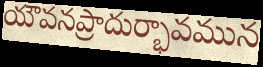
యౌవనప్రాదుర్భావమున